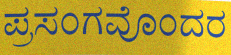
ಪ್ರಸಂಗವೊಂದರ